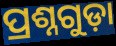
ପ୍ରଶ୍ନଗୁଡ଼ା